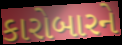
કારોબારને